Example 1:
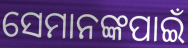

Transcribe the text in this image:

ସେମାନଙ୍କପାଇଁ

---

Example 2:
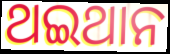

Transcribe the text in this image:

ଥଇଥାନ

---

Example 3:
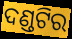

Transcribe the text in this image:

ଦଣ୍ଡଟିର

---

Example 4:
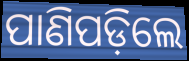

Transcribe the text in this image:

ପାଣିପଡ଼ିଲେ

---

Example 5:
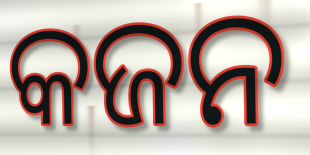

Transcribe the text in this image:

କଜନ